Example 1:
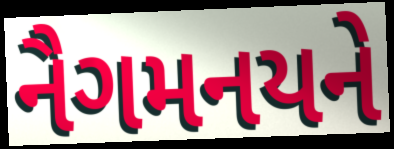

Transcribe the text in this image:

નૈગમનયને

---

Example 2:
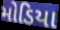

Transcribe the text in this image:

મોડિયા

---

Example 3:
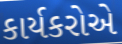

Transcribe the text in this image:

કાર્યકરોએ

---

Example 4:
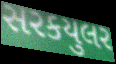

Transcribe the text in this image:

સરકયુલર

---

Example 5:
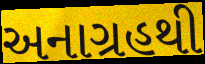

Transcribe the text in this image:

અનાગ્રહથી